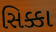
સિક્કા